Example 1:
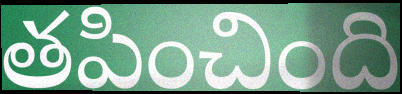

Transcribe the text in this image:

తపించింది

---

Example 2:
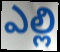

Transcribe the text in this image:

ఎల్లి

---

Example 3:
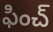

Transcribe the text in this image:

ఫించ్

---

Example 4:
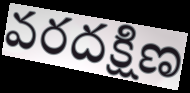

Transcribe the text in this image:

వరదక్షిణ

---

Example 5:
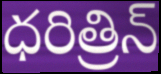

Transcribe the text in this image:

ధరిత్రిన్